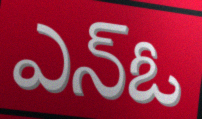
ఎన్ఓ